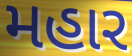
મહાર